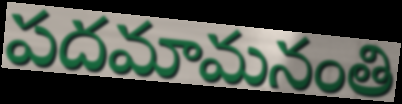
పదమామనంతి